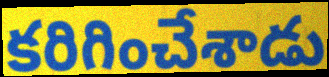
కరిగించేశాడు